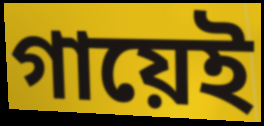
গায়েই